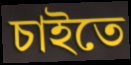
চাইতে